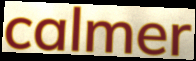
calmer